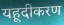
यहूदीकरण